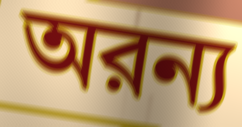
অরন্য